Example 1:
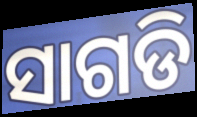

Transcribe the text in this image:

ସାଗଡି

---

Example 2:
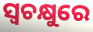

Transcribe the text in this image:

ସ୍ୱଚକ୍ଷୁରେ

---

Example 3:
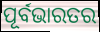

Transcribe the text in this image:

ପୂର୍ବଭାରତର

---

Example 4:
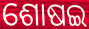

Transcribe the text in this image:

ଶୋଷଇ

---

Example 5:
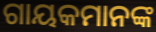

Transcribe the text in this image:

ଗାୟକମାନଙ୍କ